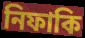
নিফাকি